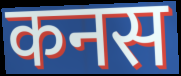
कनस